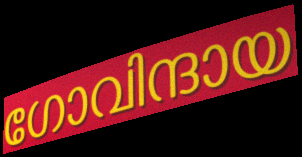
ഗോവിന്ദായ